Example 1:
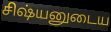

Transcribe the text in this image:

சிஷ்யனுடைய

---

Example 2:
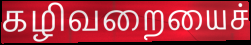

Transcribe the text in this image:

கழிவறையைச்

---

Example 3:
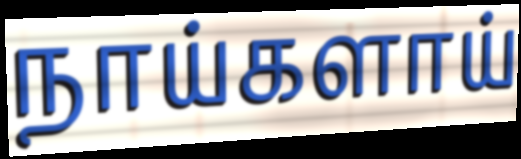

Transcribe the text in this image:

நாய்களாய்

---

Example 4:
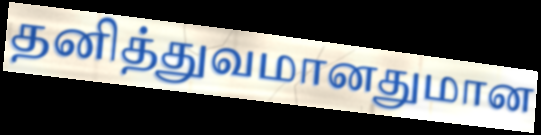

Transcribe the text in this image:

தனித்துவமானதுமான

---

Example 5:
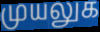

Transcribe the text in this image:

முயலுக